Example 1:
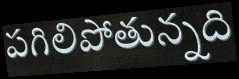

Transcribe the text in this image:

పగిలిపోతున్నది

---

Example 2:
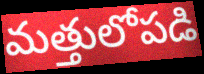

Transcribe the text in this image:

మత్తులోపడి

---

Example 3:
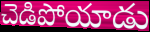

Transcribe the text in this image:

చెడిపోయాడు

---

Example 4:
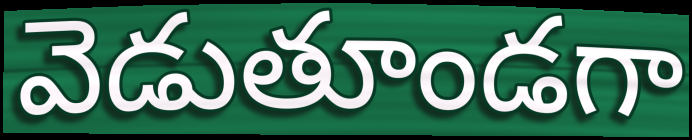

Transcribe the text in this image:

వెడుతూండగా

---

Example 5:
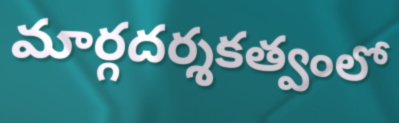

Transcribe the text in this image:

మార్గదర్శకత్వంలో